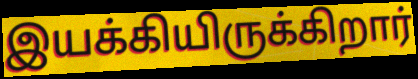
இயக்கியிருக்கிறார்